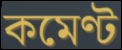
কমেণ্ট